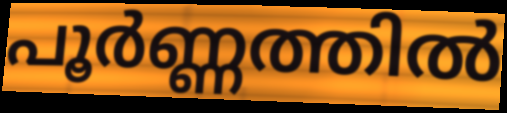
പൂർണ്ണത്തിൽ